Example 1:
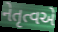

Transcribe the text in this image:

નેતૃત્વએ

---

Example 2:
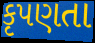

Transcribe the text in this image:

કૃપણતા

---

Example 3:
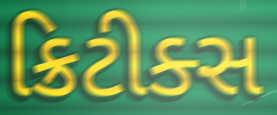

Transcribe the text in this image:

ક્રિટીક્સ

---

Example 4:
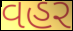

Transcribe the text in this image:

વહર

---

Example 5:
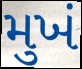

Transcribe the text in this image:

મુખં